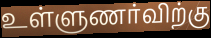
உள்ளுணர்விற்கு